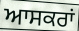
ਆਸਕਰਾਂ